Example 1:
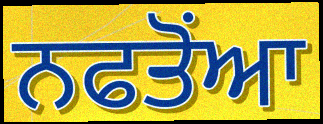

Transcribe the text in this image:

ਨਫਤੋਂਆ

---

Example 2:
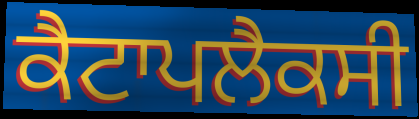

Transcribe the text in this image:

ਕੈਟਾਪਲੈਕਸੀ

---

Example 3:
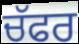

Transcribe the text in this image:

ਚੱਫਰ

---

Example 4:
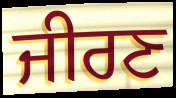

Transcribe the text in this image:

ਜੀਰਣ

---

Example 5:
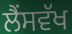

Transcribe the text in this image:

ਲੈਂਸਵੱਖ